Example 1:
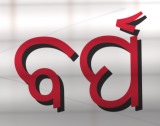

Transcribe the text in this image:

ବର୍ପ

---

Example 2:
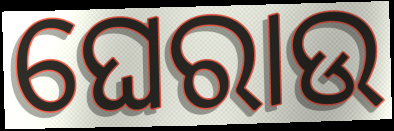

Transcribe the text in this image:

ଘେରାଉ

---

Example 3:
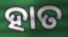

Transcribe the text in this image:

ହାତ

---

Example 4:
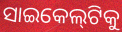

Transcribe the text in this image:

ସାଇକେଲ୍‌ଟିକୁ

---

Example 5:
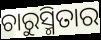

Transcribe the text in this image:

ଚାରୁସ୍ମିତାର